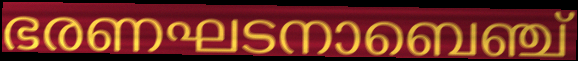
ഭരണഘടനാബെഞ്ച്